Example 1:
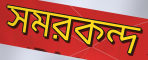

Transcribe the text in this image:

সমরকন্দ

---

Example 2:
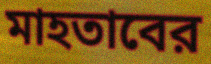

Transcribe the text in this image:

মাহতাবের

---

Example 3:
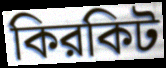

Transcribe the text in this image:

কিরকিট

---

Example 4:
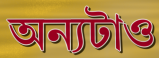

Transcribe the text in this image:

অন্যটাও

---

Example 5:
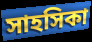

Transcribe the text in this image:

সাহসিকা